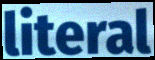
literal